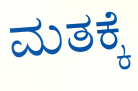
ಮತಕ್ಕೆ